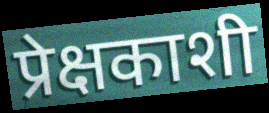
प्रेक्षकाशी